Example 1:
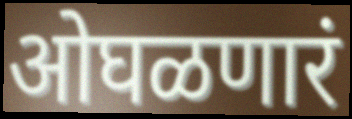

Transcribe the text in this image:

ओघळणारं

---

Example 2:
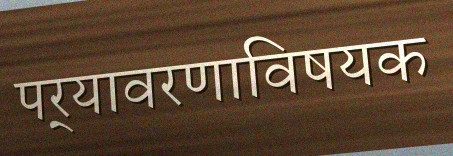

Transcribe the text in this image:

पर्यावरणाविषयक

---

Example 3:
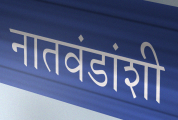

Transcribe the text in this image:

नातवंडांशी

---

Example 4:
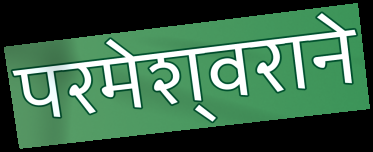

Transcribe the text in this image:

परमेश्वराने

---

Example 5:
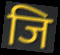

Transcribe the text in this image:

जि